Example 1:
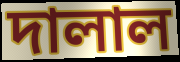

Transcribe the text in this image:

দালাল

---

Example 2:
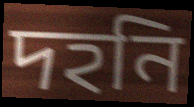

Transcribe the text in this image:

দহনি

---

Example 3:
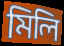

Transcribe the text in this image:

মিলি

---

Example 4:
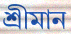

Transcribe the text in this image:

শ্ৰীমান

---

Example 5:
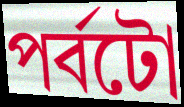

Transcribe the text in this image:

পৰ্বটো